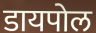
डायपोल